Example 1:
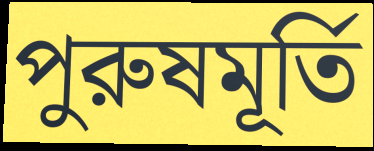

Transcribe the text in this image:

পুরুষমূর্তি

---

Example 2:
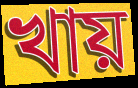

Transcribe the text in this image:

খায়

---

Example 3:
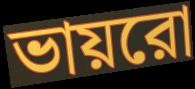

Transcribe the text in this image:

ভায়রো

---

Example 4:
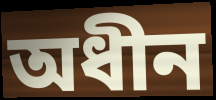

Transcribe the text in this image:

অধীন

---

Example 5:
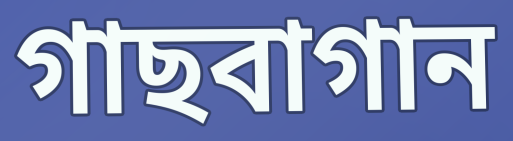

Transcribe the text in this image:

গাছবাগান